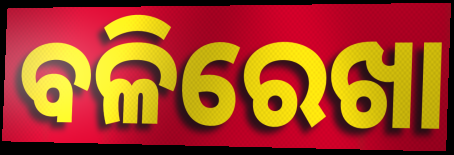
ବଳିରେଖା